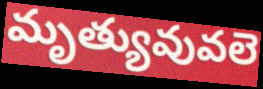
మృత్యువువలె